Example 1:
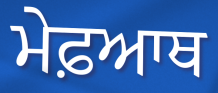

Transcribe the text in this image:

ਮੇਫ਼ਆਥ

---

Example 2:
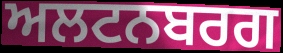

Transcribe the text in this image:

ਅਲਟਨਬਰਗ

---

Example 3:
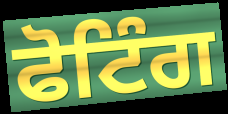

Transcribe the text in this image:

ਫੋਟਿੰਗ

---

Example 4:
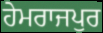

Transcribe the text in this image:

ਹੇਮਰਾਜਪੁਰ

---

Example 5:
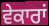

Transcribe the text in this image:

ਵੇਕਾਰਾਂ